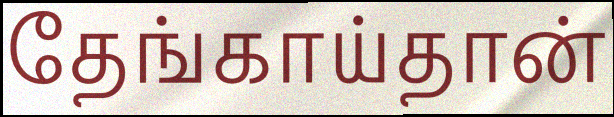
தேங்காய்தான்